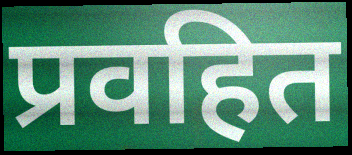
प्रवहित